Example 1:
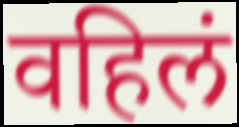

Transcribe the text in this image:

वहिलं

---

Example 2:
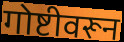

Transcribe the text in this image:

गोष्टीवरून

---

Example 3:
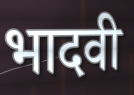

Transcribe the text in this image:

भादवी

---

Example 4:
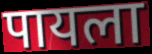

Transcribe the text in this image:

पायला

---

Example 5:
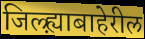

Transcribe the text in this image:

जिल्ह्य़ाबाहेरील